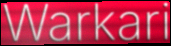
Warkari